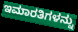
ಇಮಾರತಿಗಳನ್ನು